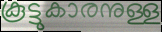
കൂട്ടുകാരനുള്ള